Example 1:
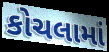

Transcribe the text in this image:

કોચલામાં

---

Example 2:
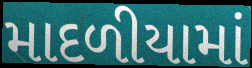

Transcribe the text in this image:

માદળીયામાં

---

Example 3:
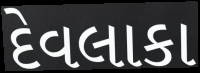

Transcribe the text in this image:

દેવલાકા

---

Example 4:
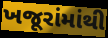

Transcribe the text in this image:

ખજૂરાંમાંથી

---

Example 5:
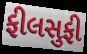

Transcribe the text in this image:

ફીલસુફી